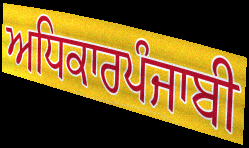
ਅਧਿਕਾਰਪੰਜਾਬੀ